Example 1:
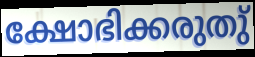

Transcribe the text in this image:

ക്ഷോഭിക്കരുതു്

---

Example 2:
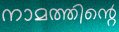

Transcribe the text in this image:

നാമത്തിന്റെ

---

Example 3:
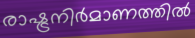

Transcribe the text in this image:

രാഷ്ട്രനിർമാണത്തിൽ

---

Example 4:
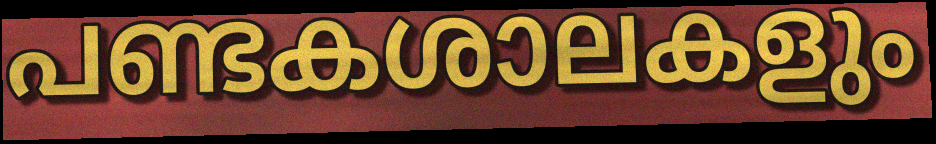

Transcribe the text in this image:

പണ്ടകശാലകളും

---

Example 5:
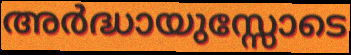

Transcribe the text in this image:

അർദ്ധായുസ്സോടെ